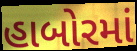
હાબોરમાં